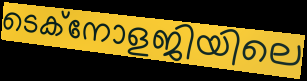
ടെക്നോളജിയിലെ